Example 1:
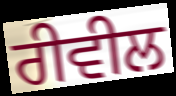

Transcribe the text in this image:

ਰੀਵੀਲ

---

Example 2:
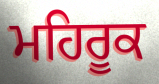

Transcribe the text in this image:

ਮਹਿਰੂਕ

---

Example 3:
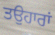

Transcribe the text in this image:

ਤਉਹਾਰਾਂ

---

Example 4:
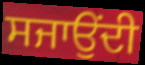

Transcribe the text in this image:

ਸਜਾਉਂਦੀ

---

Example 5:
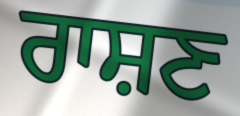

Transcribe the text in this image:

ਰਾਸ਼ਣ